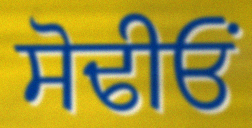
ਸੋਢੀਓਂ